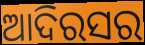
ଆଦିରସର